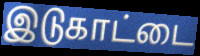
இடுகாட்டை